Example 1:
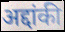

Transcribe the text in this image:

अद्दांकी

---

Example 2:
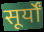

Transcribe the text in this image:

सूर्यों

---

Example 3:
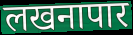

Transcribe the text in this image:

लखनापार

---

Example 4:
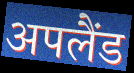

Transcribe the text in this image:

अपलैंड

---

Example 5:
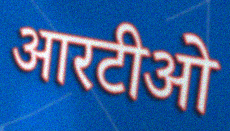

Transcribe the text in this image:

आरटीओ